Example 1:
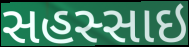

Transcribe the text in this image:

સહસ્સાઇ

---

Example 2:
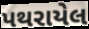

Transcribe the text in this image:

પથરાયેલ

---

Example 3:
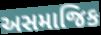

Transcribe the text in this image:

અસમાજિક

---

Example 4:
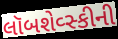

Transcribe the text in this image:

લૉબશેવ્સ્કીની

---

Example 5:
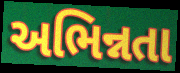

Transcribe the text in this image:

અભિન્નતા